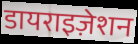
डायराइज़ेशन